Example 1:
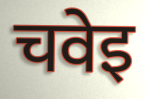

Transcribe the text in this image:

चवेइ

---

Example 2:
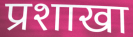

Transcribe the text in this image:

प्रशाखा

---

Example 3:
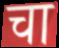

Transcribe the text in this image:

चा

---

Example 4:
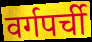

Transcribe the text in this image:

वर्गपर्ची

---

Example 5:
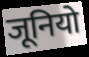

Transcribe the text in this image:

जूनियो